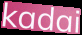
kadai